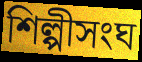
শিল্পীসংঘ